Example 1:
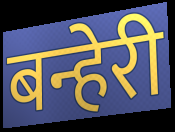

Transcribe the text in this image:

बन्हेरी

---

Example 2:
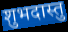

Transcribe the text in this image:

शुभदास्तु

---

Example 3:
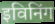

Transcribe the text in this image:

इविनिंग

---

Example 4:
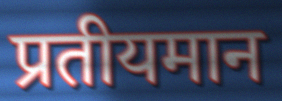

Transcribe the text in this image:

प्रतीयमान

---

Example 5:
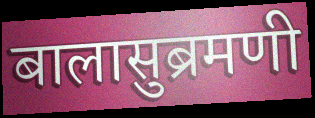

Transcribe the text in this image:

बालासुब्रमणी